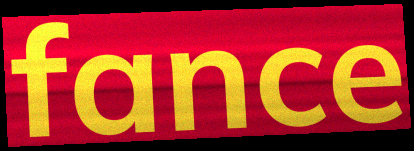
fance